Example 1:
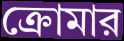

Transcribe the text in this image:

ক্রোমার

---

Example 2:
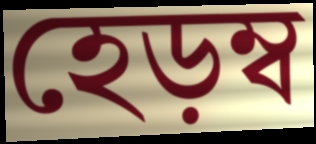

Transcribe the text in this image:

হেড়ম্ব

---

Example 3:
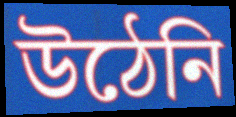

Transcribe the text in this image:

উঠেনি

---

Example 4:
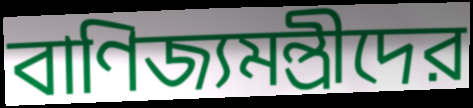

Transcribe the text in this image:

বাণিজ্যমন্ত্রীদের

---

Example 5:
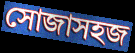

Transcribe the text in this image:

সোজাসহজ